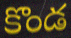
కొండ